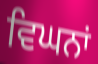
ਵਿਘਨਾਂ